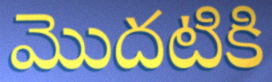
మొదటికి